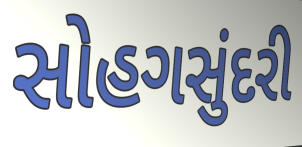
સોહગસુંદરી